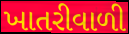
ખાતરીવાળી